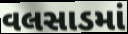
વલસાડમાં